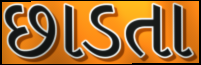
છાડતા